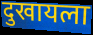
दुखायला